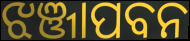
ଝଞ୍ଜାପବନ